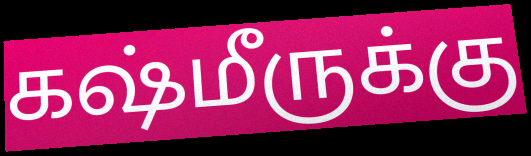
கஷ்மீருக்கு